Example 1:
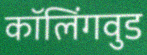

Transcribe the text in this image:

कॉलिंगवुड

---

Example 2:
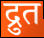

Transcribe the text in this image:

द्रुत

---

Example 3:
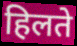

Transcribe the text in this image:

हिलते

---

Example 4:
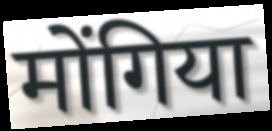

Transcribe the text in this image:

मोंगिया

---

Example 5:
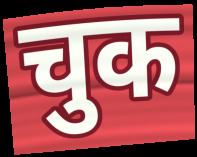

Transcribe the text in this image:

चुक